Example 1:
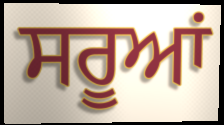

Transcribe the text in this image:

ਸਰੂਆਂ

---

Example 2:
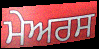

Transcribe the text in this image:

ਮੇਅਰਸ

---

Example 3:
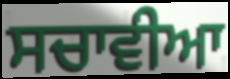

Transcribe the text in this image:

ਸਚਾਵੀਆ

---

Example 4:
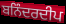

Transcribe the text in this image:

ਬਨਿੰਦਰਦੀਪ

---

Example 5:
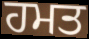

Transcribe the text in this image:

ਹਮਤ